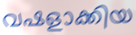
വഷളാക്കിയ